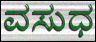
ವಸುಧ